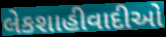
લેકશાહીવાદીઓ